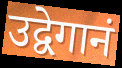
उद्वेगानं